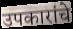
उपकारांचे